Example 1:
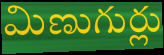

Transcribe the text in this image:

మిణుగుర్లు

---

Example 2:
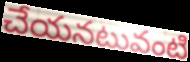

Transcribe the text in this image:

చేయనటువంటి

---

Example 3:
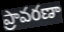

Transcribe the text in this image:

ప్రావరణా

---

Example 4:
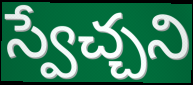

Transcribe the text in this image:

స్వేచ్చని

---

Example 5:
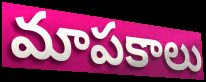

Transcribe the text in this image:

మాపకాలు